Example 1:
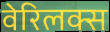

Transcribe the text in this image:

वेरिलक्स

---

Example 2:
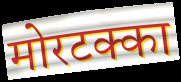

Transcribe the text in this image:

मोरटक्का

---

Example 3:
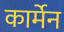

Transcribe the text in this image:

कार्मेन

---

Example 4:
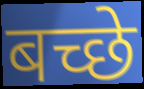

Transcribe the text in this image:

बच्छे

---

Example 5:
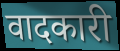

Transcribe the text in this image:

वादकारी